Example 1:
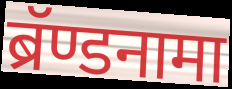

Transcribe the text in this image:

ब्रॅण्डनामा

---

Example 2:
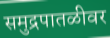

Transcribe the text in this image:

समुद्रपातळीवर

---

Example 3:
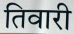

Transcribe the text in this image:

तिवारी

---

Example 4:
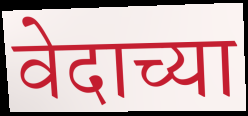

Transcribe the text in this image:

वेदाच्या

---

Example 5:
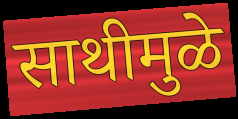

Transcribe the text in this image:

साथीमुळे